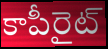
కాపీరైట్